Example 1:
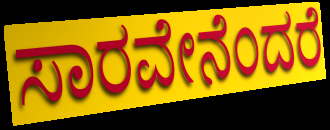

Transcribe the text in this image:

ಸಾರವೇನೆಂದರೆ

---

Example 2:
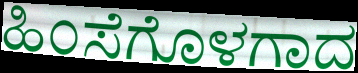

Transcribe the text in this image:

ಹಿಂಸೆಗೊಳಗಾದ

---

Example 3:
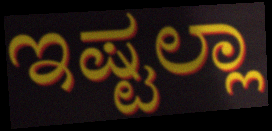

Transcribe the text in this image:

ಇಷ್ಟಲ್ಲಾ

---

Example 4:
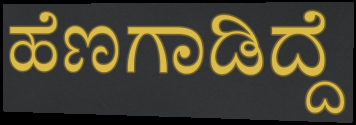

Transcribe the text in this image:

ಹೆಣಗಾಡಿದ್ದೆ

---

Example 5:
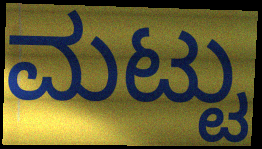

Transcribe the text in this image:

ಮಟ್ಟು